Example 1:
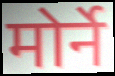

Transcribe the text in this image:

मोर्ने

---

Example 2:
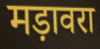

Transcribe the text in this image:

मड़ावरा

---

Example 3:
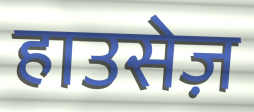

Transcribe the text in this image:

हाउसेज़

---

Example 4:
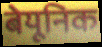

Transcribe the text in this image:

बेयूनिक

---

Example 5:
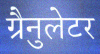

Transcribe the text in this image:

ग्रैनुलेटर